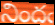
నిందఁ